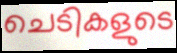
ചെടികളുടെ